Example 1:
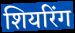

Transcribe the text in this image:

शियरिंग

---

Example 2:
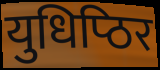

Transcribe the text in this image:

युधिप्ठिर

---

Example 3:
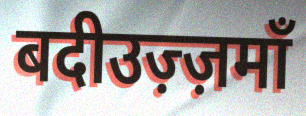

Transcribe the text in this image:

बदीउज़्ज़माँ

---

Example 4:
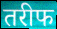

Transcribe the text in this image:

तरीफ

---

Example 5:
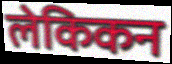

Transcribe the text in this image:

लेकिकन